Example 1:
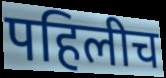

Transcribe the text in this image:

पहिलीच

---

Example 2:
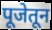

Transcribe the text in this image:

पूजेतून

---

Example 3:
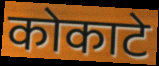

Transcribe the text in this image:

कोकाटे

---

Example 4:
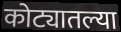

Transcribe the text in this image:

कोट्यातल्या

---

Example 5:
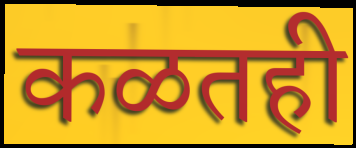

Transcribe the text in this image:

कळतही